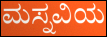
ಮಸ್ನವಿಯ